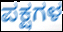
ಪಕ್ಷಗಳ